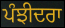
ਪੰਝੀਦਰਾ